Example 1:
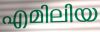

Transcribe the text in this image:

എമിലിയ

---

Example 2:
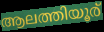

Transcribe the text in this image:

ആലത്തിയൂര്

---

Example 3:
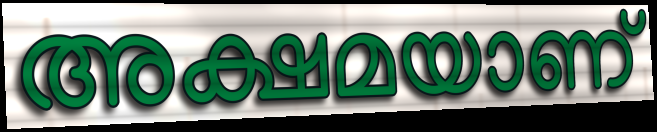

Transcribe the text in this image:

അക്ഷമയാണ്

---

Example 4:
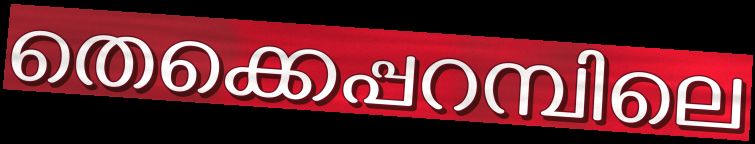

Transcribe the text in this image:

തെക്കെപ്പറമ്പിലെ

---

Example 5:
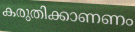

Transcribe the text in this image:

കരുതിക്കാണണം